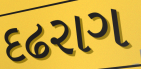
દઢરાગ